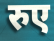
रुए